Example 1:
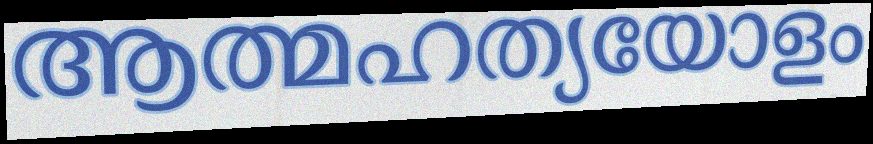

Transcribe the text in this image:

ആത്മഹത്യയോളം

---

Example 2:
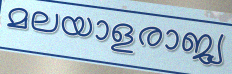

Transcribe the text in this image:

മലയാളരാജ്യ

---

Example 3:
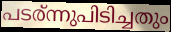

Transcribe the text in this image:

പടര്ന്നുപിടിച്ചതും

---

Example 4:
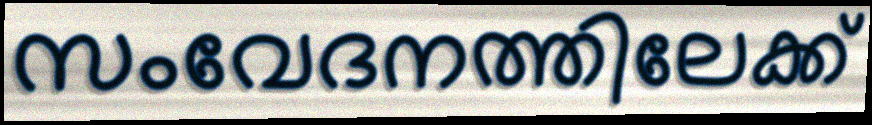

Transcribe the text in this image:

സംവേദനത്തിലേക്ക്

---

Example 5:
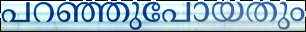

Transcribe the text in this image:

പറഞ്ഞുപോയതും